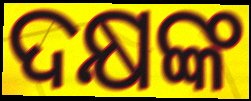
ଦକ୍ଷଙ୍କ